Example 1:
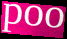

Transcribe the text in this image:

poo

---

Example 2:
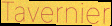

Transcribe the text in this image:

Tavernier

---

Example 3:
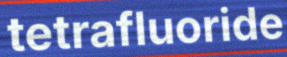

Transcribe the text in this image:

tetrafluoride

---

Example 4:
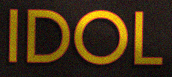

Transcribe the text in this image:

IDOL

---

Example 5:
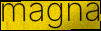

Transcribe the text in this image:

magna